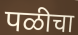
पळीचा